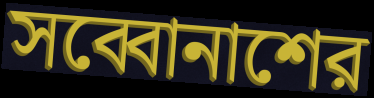
সব্বোনাশের